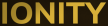
IONITY